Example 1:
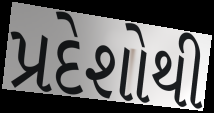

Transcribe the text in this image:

પ્રદેશોથી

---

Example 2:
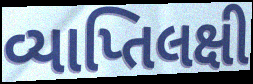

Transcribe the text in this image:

વ્યાપ્તિલક્ષી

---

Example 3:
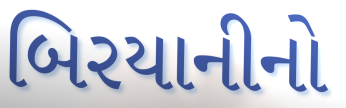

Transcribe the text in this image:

બિરયાનીનો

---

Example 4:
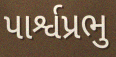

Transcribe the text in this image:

પાર્શ્વપ્રભુ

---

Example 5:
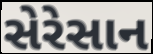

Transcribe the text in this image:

સેરેસાન